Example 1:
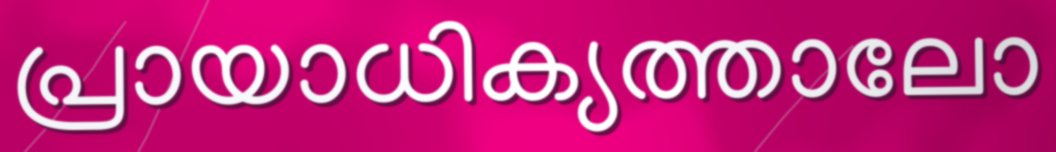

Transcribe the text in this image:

പ്രായാധിക്യത്താലോ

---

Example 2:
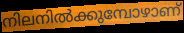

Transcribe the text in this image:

നിലനിൽക്കുമ്പോഴാണ്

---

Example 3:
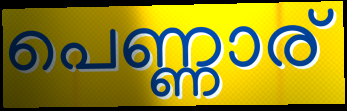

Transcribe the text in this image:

പെണ്ണാര്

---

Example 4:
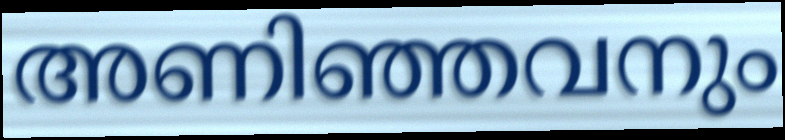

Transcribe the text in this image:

അണിഞ്ഞവനും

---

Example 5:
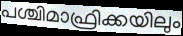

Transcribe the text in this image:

പശ്ചിമാഫ്രിക്കയിലും